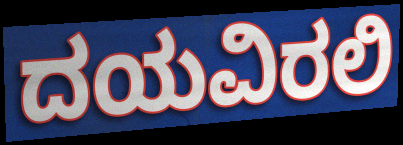
ದಯವಿರಲಿ